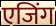
एजिंग